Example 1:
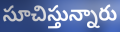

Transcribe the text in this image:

సూచిస్తున్నారు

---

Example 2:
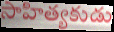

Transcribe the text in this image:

సాహిత్యకుడు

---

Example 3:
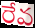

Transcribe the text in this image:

రేవ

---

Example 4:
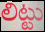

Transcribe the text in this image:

లిట్టు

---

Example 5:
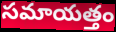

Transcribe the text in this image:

సమాయత్తం